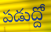
పడుద్దో